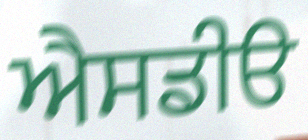
ਐਸਡੀੳ